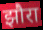
झौरा